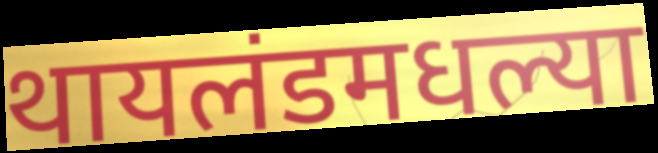
थायलंडमधल्या